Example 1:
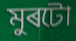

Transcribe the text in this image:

মুৰটো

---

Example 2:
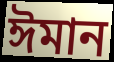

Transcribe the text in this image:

ঈমান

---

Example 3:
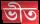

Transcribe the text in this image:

ভীত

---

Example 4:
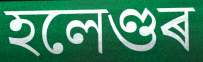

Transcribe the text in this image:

হলেণ্ডৰ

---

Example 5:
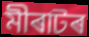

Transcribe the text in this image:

মীৰাটৰ